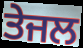
ਤੇਜਲ